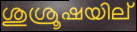
ശുശ്രൂഷയില്